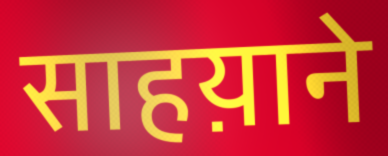
साहय़ाने